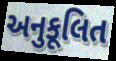
અનુકૂલિત